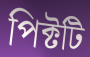
পিক্টটি